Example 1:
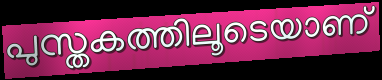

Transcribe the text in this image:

പുസ്തകത്തിലൂടെയാണ്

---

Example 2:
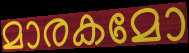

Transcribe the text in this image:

മാരകമോ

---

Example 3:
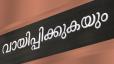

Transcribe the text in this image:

വായിപ്പിക്കുകയും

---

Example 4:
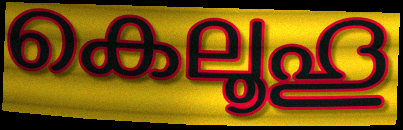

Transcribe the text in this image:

കെലൂഹൂ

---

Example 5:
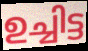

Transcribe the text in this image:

ഉച്ചിട്ട